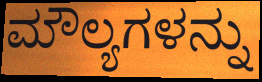
ಮೌಲ್ಯಗಳನ್ನು